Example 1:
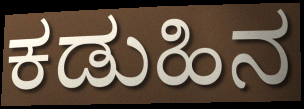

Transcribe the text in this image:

ಕಡುಹಿನ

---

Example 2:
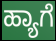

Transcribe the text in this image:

ಹ್ಯಾಗೆ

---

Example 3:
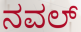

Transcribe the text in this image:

ನವಲ್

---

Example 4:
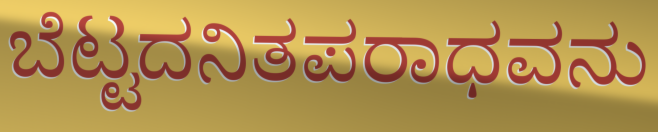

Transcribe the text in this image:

ಬೆಟ್ಟದನಿತಪರಾಧವನು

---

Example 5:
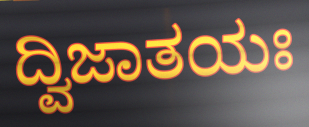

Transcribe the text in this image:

ದ್ವಿಜಾತಯಃ